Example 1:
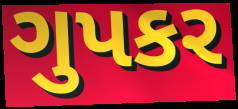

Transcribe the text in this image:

ગુપકર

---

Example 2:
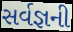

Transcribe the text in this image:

સર્વજ્ઞની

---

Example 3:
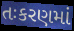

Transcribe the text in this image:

તઃકરણમાં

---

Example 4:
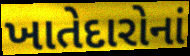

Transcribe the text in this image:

ખાતેદારોનાં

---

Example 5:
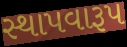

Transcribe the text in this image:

સ્થાપવારૂપ